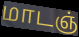
மாடஞ்